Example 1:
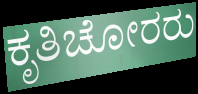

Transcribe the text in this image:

ಕೃತಿಚೋರರು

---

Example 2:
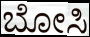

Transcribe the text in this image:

ಬೋಸಿ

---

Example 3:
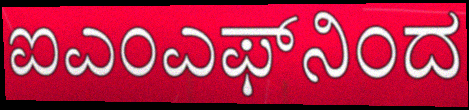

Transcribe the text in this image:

ಐಎಂಎಫ್‌ನಿಂದ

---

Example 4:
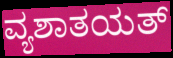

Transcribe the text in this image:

ವ್ಯಶಾತಯತ್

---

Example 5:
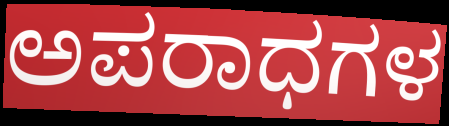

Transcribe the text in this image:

ಅಪರಾಧಗಳ